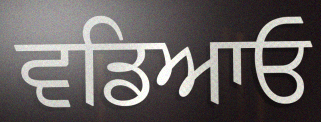
ਵਡਿਆਓ